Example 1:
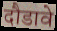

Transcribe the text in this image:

दौडावे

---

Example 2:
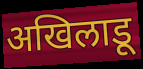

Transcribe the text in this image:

अखिलाडू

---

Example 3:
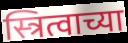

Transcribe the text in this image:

स्त्रित्वाच्या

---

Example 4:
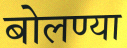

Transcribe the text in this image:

बोलण्या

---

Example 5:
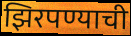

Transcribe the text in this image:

झिरपण्याची